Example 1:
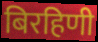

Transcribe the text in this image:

बिरहिणी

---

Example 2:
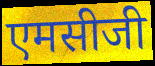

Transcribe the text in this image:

एमसीजी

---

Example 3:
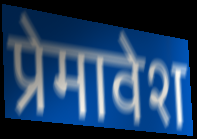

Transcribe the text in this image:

प्रेमावेश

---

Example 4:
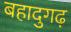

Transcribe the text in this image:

बहादुगढ़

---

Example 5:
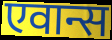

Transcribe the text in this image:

एवान्स